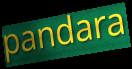
pandara